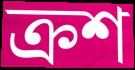
ক্রশ